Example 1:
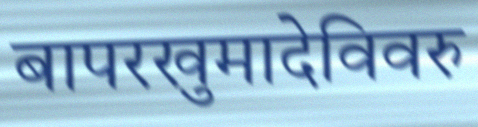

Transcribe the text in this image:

बापरखुमादेविवरु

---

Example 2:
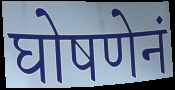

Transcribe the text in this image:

घोषणेनं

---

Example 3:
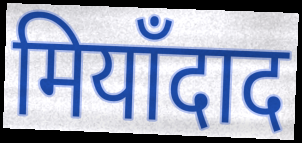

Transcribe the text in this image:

मियाँदाद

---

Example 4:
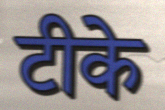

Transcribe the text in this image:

टीके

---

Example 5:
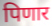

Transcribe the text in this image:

पिणार